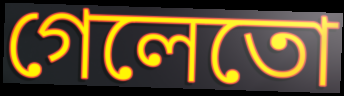
গেলেতো